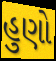
હુણો